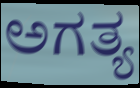
ಅಗತ್ಯ